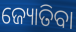
ଜ୍ୟୋତିବା